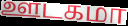
ஊடகமா